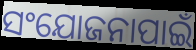
ସଂଯୋଜନାପାଇଁ